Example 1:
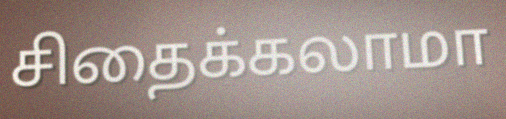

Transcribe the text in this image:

சிதைக்கலாமா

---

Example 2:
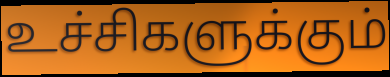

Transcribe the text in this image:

உச்சிகளுக்கும்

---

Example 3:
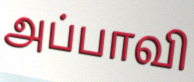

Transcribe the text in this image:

அப்பாவி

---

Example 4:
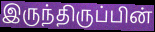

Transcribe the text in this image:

இருந்திருப்பின்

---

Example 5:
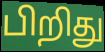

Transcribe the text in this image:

பிறிது